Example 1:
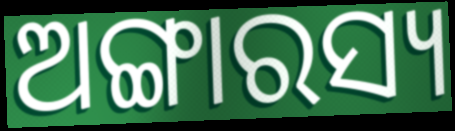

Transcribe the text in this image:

ଅଙ୍ଗାରସ୍ୟ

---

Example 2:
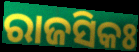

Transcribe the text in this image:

ରାଜସିକଃ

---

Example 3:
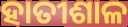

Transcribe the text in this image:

ହାତୀଶାଳ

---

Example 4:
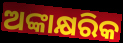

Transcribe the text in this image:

ଅଙ୍କାକ୍ଷରିକ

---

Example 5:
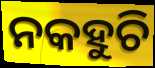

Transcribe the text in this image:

ନକହୁଚି